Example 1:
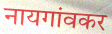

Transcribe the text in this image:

नायगांवकर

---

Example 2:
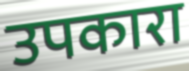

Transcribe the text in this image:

उपकारा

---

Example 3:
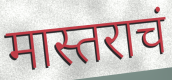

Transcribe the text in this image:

मास्तराचं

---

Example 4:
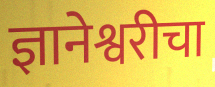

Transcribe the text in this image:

ज्ञानेश्वरीचा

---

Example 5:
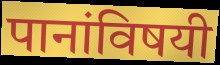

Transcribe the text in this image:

पानांविषयी